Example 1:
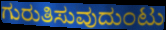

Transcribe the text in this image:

ಗುರುತಿಸುವುದುಂಟು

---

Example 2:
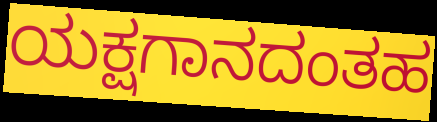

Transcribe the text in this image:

ಯಕ್ಷಗಾನದಂತಹ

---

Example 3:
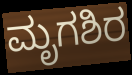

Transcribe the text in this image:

ಮೃಗಶಿರ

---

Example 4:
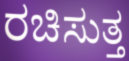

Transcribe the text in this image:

ರಚಿಸುತ್ತ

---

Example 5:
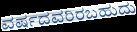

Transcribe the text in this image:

ವರ್ಷದವರಿರಬಹುದು